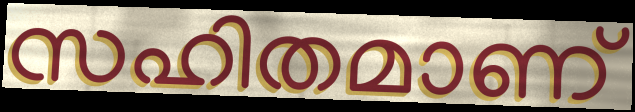
സഹിതമാണ്